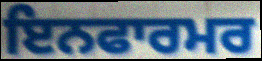
ਇਨਫਾਰਮਰ